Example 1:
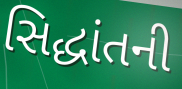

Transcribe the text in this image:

સિદ્ધાંતની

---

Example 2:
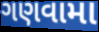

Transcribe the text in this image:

ગણવામા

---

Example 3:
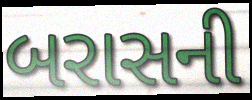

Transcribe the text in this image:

બરાસની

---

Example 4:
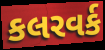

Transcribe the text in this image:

કલરવર્ક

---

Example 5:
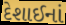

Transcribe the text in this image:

દેશાઈનાં